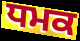
ਧਮਕ